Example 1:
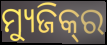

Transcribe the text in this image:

ମ୍ୟୁଜିକ୍‌ର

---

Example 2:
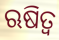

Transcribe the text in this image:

ଋଷିତ୍ୱ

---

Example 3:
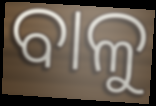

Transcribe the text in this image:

ବାଳୁ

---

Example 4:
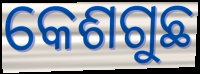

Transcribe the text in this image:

କେଶଗୁଛ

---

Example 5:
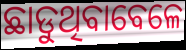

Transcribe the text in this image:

ଛାଡୁଥିବାବେଳେ